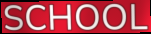
SCHOOL